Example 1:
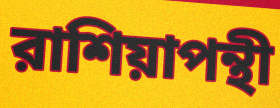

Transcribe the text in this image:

রাশিয়াপন্থী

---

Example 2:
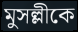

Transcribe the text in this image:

মুসল্লীকে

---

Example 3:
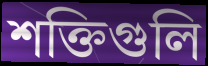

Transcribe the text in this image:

শক্তিগুলি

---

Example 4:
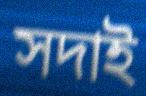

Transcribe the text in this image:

সদাই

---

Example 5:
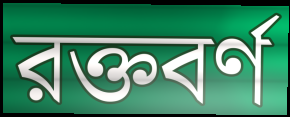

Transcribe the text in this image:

রক্তবর্ণ